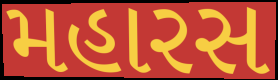
મહારસ